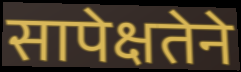
सापेक्षतेने